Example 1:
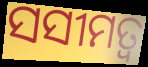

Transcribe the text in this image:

ସସୀମତ୍ୱ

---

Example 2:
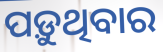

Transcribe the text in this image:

ପଡ଼ୁଥିବାର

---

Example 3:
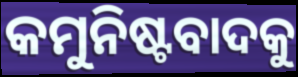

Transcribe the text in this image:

କମୁନିଷ୍ଟବାଦକୁ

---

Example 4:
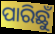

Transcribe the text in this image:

ପାରିଛୁଁ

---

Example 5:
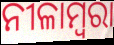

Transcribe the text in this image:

ନୀଳାମ୍ବରା